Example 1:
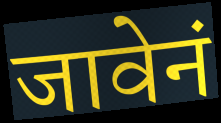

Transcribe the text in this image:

जावेनं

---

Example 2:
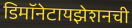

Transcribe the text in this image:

डिमॉनेटायझेशनची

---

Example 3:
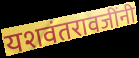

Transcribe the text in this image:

यशवंतरावजींनी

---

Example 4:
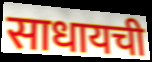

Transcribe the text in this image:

साधायची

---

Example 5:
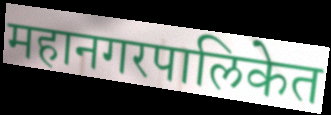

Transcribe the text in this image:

महानगरपालिकेत